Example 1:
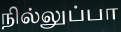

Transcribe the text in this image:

நில்லுப்பா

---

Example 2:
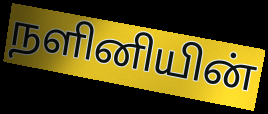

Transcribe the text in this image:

நளினியின்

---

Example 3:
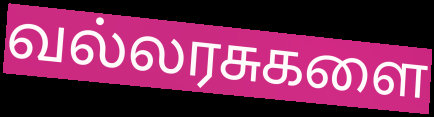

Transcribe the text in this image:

வல்லரசுகளை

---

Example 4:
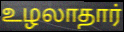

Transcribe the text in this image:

உழலாதார்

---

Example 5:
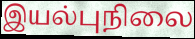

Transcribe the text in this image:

இயல்புநிலை